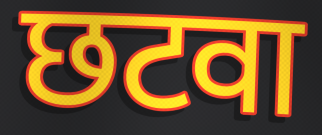
छटवा